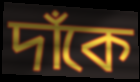
দাঁকে